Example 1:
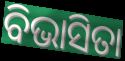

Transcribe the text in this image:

ବିଭାସିତା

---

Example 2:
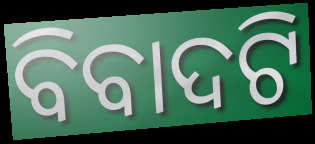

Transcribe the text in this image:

ବିବାଦଟି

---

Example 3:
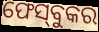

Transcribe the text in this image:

ଫେସ୍‌ବୁକର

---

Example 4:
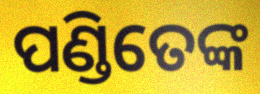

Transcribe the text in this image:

ପଣ୍ଡିତେଙ୍କ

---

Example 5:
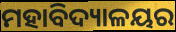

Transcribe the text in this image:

ମହାବିଦ୍ୟାଳୟର